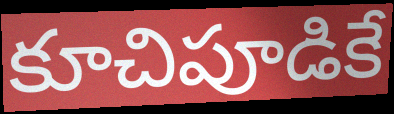
కూచిపూడికే